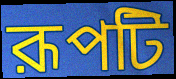
রূপটি